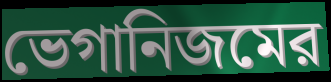
ভেগানিজমের